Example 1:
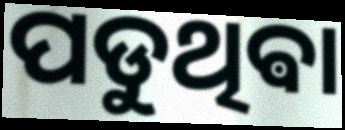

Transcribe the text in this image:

ପଡୁଥିଵା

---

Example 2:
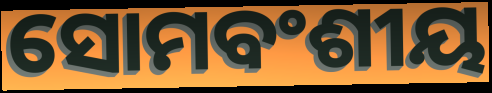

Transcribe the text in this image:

ସୋମବଂଶୀୟ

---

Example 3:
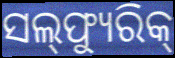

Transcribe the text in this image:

ସଲ୍‌ଫ୍ୟୁରିକ୍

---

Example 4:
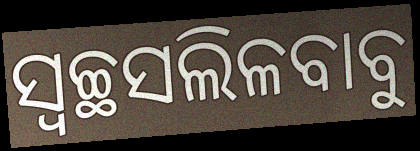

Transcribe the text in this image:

ସ୍ୱଚ୍ଛସଲିଳବାବୁ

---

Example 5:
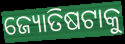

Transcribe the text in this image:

ଜ୍ୟୋତିଷଟାକୁ